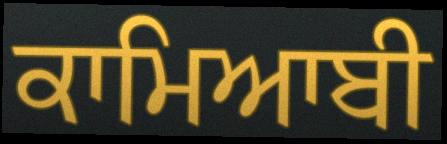
ਕਾਮਿਆਬੀ